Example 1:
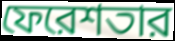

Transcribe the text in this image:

ফেরেশতার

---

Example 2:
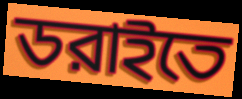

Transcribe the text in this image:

ডরাইতে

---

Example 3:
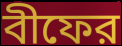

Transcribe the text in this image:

বীফের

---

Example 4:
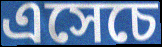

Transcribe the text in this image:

এসেচে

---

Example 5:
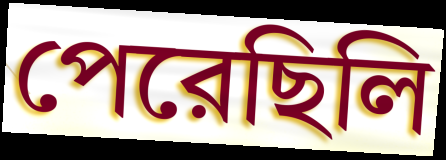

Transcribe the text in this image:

পেরেছিলি